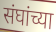
संघांच्या